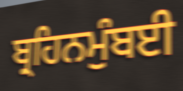
ਬ੍ਰਹਿਨਮੁੰਬਈ